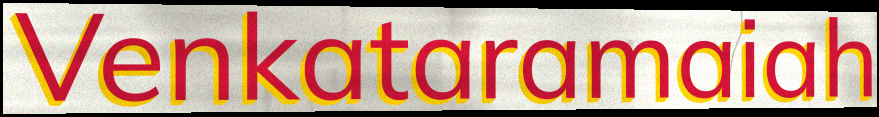
Venkataramaiah